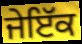
ਜੇਇੱਕ